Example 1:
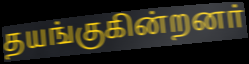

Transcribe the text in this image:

தயங்குகின்றனர்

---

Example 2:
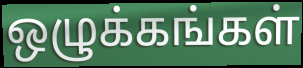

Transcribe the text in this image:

ஒழுக்கங்கள்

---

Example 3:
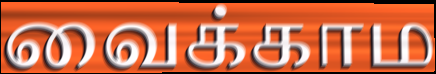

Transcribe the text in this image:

வைக்காம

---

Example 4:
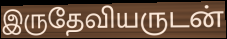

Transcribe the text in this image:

இருதேவியருடன்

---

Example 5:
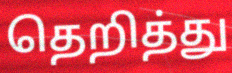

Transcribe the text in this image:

தெறித்து